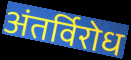
अंतर्विरोध